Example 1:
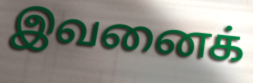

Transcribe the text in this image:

இவனைக்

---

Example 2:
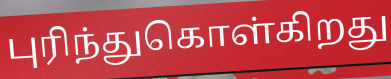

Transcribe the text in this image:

புரிந்துகொள்கிறது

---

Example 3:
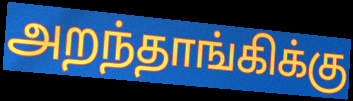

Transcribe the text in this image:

அறந்தாங்கிக்கு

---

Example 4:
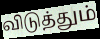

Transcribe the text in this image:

விடுத்தும்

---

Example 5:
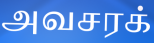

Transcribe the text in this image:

அவசரக்